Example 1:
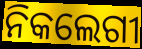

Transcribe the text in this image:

ନିକଲେଗୀ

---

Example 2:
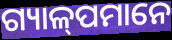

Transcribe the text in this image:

ଗ୍ୟାଳ୍‍ପମାନେ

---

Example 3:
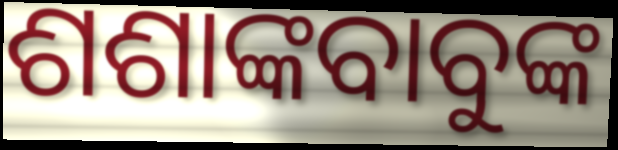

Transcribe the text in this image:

ଶଶାଙ୍କବାବୁଙ୍କ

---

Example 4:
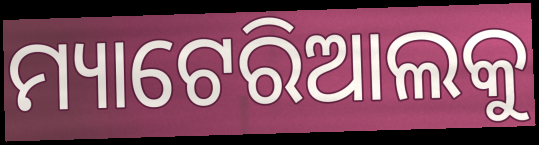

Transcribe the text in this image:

ମ୍ୟାଟେରିଆଲକୁ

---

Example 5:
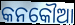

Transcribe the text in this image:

କନକୌଆ